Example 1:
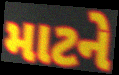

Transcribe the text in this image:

માટને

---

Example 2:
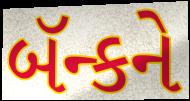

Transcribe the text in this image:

બૅન્કને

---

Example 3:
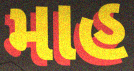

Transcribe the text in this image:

માહ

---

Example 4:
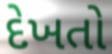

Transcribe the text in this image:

દેખતો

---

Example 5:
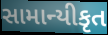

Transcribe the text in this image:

સામાન્યીકૃત